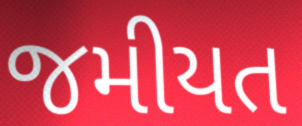
જમીયત